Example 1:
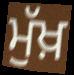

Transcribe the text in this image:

ਮੁੱਖ਼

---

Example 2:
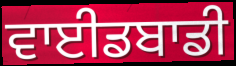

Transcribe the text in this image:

ਵਾਈਡਬਾਡੀ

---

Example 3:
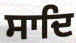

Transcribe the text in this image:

ਸਾਦਿ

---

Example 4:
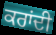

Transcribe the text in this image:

ਕਰਾਂਦੀ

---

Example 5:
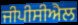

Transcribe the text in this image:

ਜੀਪੀਸੀਐਲ